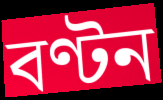
বণ্টন